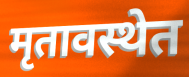
मृतावस्थेत